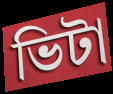
ভিটা